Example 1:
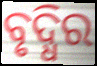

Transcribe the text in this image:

ବୃଦ୍ଧିର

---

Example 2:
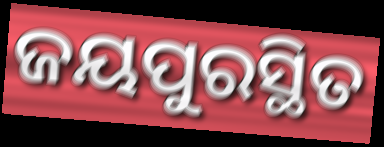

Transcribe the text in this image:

ଜୟପୁରସ୍ଥିତ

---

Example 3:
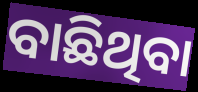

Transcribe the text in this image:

ବାଛିଥିବା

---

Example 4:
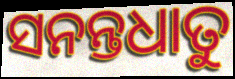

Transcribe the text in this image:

ସନନ୍ତଧାତୁ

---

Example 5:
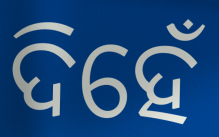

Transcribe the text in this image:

ଦିହେଁ